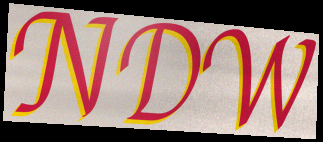
NDW